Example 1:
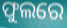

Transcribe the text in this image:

ଫୁଲରେ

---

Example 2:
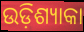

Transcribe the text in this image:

ଉଡ଼ିଶ୍ୟାକା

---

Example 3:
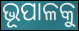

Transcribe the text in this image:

ଭୂପାଳକୁ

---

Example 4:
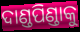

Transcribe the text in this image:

ଦାଣ୍ଡପିଣ୍ଡାକୁ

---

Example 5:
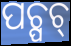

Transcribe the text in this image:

ପଚ୍ପଚ୍